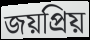
জয়প্রিয়